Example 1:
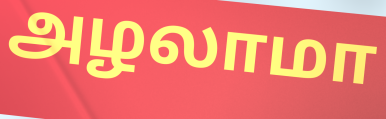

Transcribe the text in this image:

அழலாமா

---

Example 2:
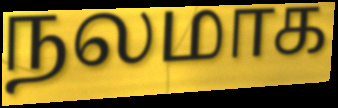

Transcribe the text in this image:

நலமாக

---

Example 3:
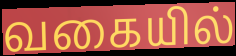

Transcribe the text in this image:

வகையில்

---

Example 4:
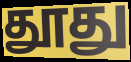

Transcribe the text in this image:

தூது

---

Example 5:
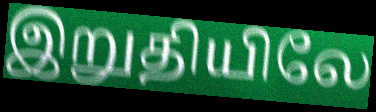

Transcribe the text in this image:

இறுதியிலே